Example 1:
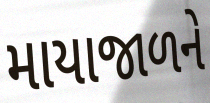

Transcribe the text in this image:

માયાજાળને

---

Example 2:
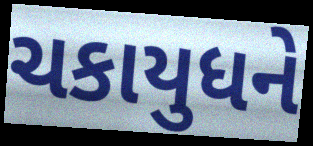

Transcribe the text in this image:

ચકાયુધને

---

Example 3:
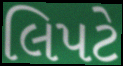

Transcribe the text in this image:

લિપટે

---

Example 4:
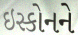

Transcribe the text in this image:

ઇસ્કોનને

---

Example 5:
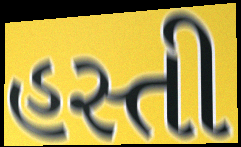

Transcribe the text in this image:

હસ્તી